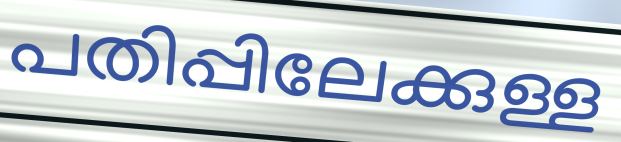
പതിപ്പിലേക്കുള്ള